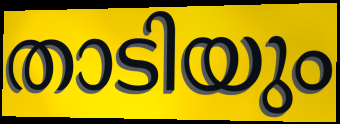
താടിയും